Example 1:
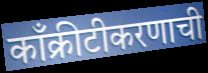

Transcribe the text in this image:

काँक्रीटीकरणाची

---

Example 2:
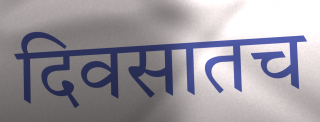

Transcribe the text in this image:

दिवसातच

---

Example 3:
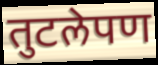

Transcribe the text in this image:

तुटलेपण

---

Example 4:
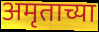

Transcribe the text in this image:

अमृताच्या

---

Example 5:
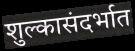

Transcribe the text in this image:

शुल्कासंदर्भात